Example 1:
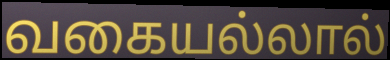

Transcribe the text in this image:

வகையல்லால்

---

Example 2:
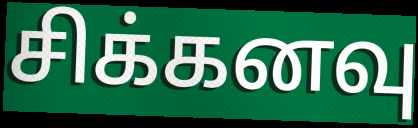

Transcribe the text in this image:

சிக்கனவு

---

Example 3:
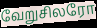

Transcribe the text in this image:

வேறுசிலரோ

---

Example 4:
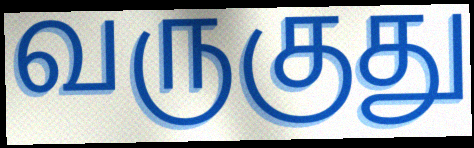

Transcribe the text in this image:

வருகுது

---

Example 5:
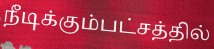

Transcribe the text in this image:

நீடிக்கும்பட்சத்தில்